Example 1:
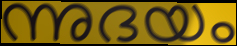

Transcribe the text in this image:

ന്നുദയം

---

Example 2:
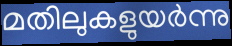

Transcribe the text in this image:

മതിലുകളുയർന്നു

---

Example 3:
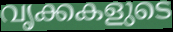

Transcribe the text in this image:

വൃക്കകളുടെ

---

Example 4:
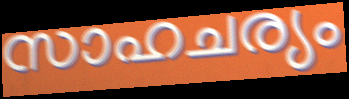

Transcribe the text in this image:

സാഹചര്യം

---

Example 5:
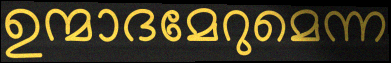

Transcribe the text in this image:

ഉന്മാദമേറുമെന്ന